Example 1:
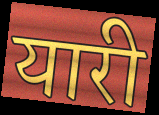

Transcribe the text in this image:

यारी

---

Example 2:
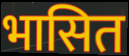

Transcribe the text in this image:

भासित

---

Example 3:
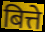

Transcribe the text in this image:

बित्ते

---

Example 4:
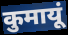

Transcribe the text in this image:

कुमायूं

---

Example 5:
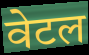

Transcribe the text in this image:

वेटल